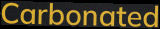
Carbonated